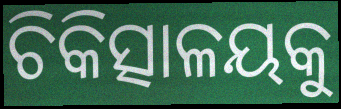
ଚିକିତ୍ସାଳୟକୁ